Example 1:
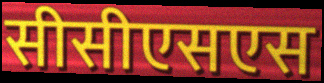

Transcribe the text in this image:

सीसीएसएस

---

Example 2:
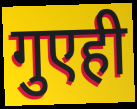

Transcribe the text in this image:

गुएही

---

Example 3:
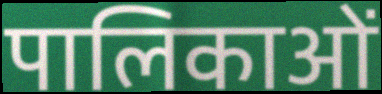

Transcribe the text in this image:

पालिकाओं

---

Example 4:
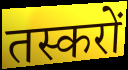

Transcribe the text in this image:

तस्करों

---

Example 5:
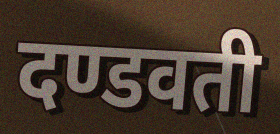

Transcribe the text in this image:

दण्डवती